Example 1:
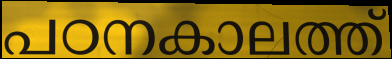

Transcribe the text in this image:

പഠനകാലത്ത്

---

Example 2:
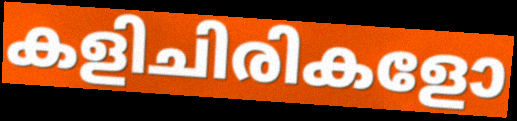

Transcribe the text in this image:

കളിചിരികളോ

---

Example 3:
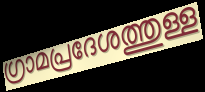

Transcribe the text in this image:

ഗ്രാമപ്രദേശത്തുള്ള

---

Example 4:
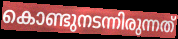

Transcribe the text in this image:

കൊണ്ടുനടന്നിരുന്നത്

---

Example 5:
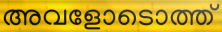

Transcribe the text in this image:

അവളോടൊത്ത്